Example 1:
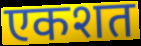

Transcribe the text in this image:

एकशत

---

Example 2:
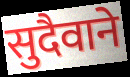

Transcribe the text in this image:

सुदैवाने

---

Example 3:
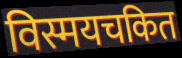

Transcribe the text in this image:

विस्मयचकित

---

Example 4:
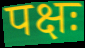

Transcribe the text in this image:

पक्षः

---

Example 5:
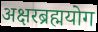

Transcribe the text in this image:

अक्षरब्रह्मयोग